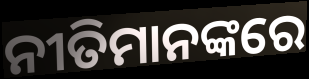
ନୀତିମାନଙ୍କରେ